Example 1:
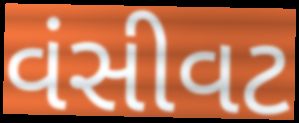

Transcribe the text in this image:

વંસીવટ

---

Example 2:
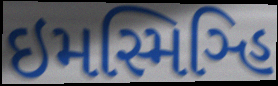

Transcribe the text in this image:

ઇમસ્મિઞ્હિ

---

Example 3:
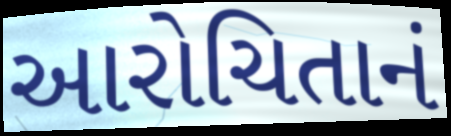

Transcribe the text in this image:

આરોચિતાનં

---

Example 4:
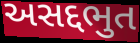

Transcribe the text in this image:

અસદ્દભુત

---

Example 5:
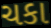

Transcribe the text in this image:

ચકા